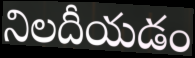
నిలదీయడం